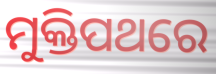
ମୁକ୍ତିପଥରେ